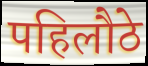
पहिलौठे